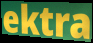
ektra